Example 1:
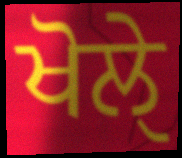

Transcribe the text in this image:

ਖੋਲੑੇ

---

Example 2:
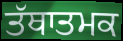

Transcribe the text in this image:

ਤੱਥਾਤਮਕ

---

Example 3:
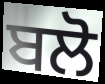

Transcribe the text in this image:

ਬਲੋ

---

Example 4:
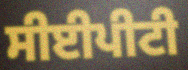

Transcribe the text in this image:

ਸੀਈਪੀਟੀ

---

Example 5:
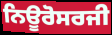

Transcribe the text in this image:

ਨਿਊਰੋਸਰਜੀ